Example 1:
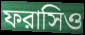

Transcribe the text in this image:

ফরাসিও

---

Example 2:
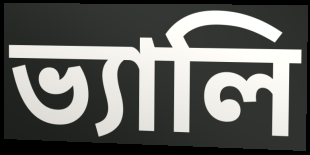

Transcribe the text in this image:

ভ্যালি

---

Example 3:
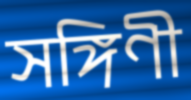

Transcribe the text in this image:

সঙ্গিণী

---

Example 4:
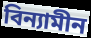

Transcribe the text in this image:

বিন্যামীন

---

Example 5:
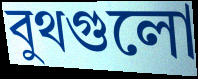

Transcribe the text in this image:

বুথগুলো